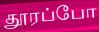
தூரப்போ